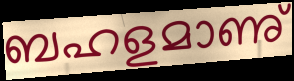
ബഹളമാണു്